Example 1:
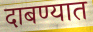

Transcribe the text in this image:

दाबण्यात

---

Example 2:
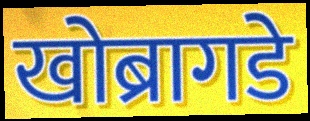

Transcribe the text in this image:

खोब्रागडे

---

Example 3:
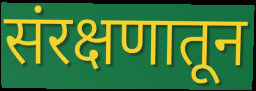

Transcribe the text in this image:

संरक्षणातून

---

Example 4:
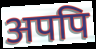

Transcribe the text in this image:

अपपि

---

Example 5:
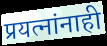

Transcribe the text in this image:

प्रयत्नांनाही